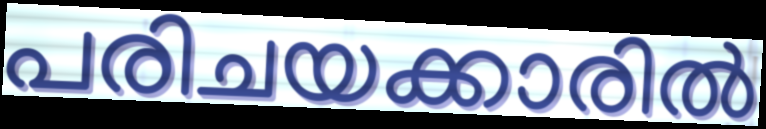
പരിചയക്കാരിൽ